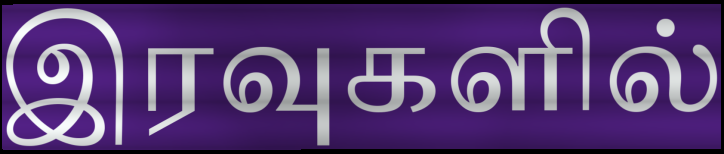
இரவுகளில்